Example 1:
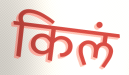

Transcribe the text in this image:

किलं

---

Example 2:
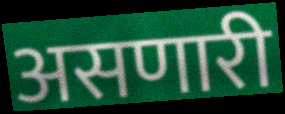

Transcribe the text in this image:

असणारी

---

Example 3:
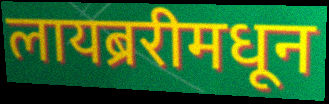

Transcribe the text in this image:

लायब्ररीमधून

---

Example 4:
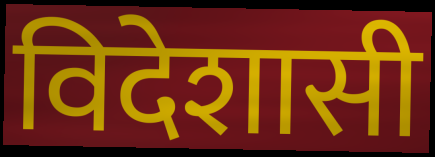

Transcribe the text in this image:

विदेशासी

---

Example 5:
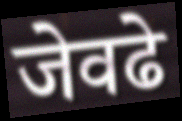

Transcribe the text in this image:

जेवढे